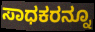
ಸಾಧಕರನ್ನೂ